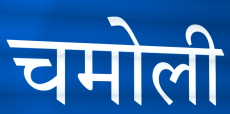
चमोली